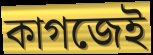
কাগজেই